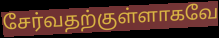
சேர்வதற்குள்ளாகவே